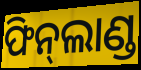
ଫିନ୍‌ଲାଣ୍ଡ